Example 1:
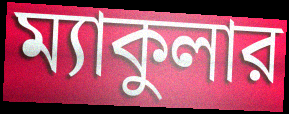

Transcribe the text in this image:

ম্যাকুলার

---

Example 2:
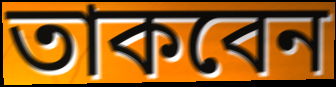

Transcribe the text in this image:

তাকবেন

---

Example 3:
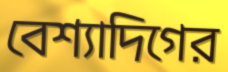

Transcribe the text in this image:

বেশ্যাদিগের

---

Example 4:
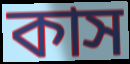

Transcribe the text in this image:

কাস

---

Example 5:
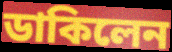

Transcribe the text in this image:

ডাকিলেন